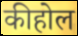
कीहोल